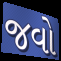
જવો